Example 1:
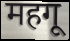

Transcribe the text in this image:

महगू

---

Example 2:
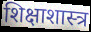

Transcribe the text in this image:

शिक्षाशास्त्र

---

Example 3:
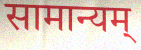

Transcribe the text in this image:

सामान्यम्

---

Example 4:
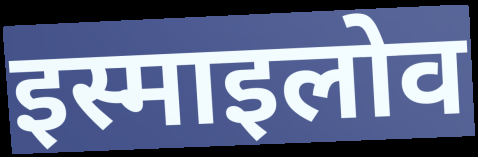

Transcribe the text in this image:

इस्माइलोव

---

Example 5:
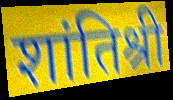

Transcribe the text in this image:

शांतिश्री